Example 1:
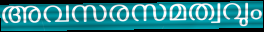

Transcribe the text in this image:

അവസരസമത്വവും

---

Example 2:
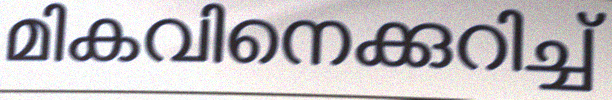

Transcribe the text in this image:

മികവിനെക്കുറിച്ച്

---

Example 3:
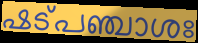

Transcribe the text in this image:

ഷട്പഞ്ചാശഃ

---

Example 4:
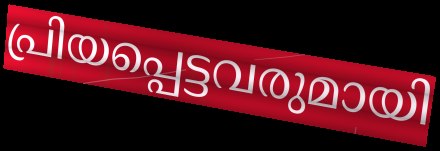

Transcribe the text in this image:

പ്രിയപ്പെട്ടവരുമായി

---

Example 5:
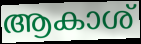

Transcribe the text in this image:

ആകാശ്